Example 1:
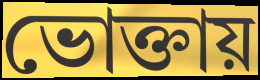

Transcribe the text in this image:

ভোক্তায়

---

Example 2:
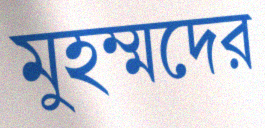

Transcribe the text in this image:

মুহম্মদের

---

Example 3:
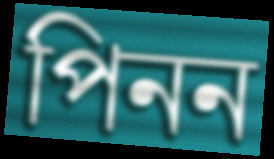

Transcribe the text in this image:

পিনন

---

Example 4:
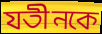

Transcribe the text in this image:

যতীনকে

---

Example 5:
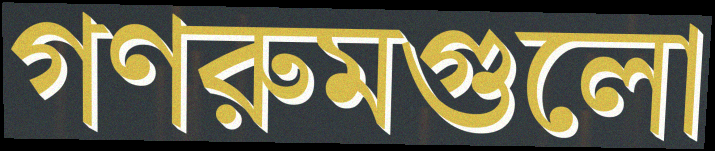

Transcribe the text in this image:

গণরুমগুলো